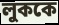
লুককে